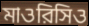
মাওরিসিও